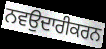
ਨਵਉਦਾਰੀਕਰਨ